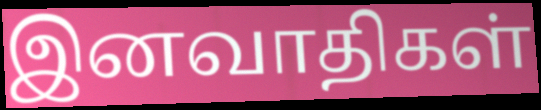
இனவாதிகள்